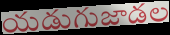
యడుగుజాడల